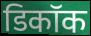
डिकॉक